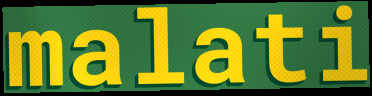
malati